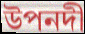
উপনদী